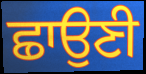
ਛਾਉਣੀ